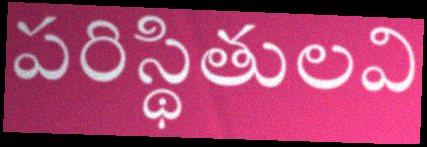
పరిస్థితులవి